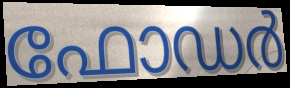
ഫോഡർ